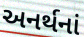
અનર્થનાં